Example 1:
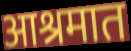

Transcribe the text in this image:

आश्रमात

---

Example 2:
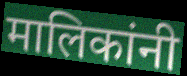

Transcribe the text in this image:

मालिकांनी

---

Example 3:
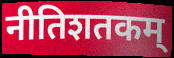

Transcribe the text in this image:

नीतिशतकम्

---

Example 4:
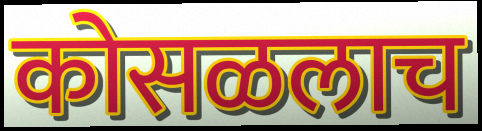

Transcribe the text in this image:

कोसळलाच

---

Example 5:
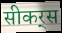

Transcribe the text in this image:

सीकर्स